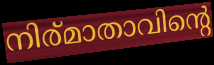
നിര്മാതാവിന്റെ